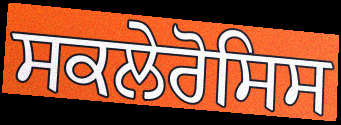
ਸਕਲੇਰੋਸਿਸ